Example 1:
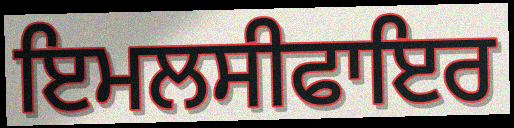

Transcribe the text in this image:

ਇਮਲਸੀਫਾਇਰ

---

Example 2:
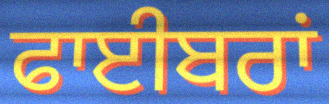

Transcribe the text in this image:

ਫਾਈਬਰਾਂ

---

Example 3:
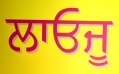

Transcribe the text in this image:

ਲਾਓਜੂ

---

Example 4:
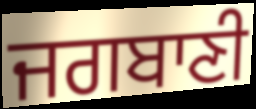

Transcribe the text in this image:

ਜਗਬਾਣੀ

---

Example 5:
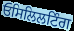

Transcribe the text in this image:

ਓਸਿਲਿਲਟਿੰਗ